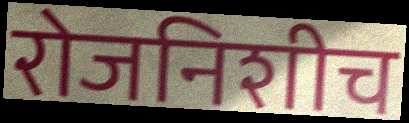
रोजनिशीच